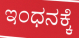
ಇಂಧನಕ್ಕೆ